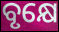
ବୃକ୍ଷେ